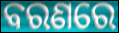
ବରଣରେ